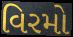
વિરમો